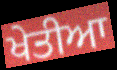
ਖੇਤੀਆ